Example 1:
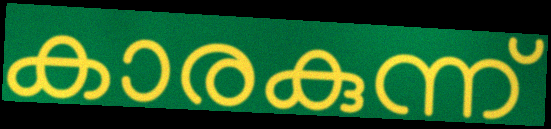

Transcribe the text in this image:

കാരകുന്ന്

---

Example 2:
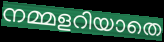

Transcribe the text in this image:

നമ്മളറിയാതെ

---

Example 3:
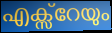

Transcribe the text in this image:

എക്സ്റേയും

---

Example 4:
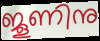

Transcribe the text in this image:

ജൂണിനു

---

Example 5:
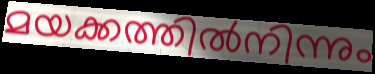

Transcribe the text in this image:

മയക്കത്തിൽനിന്നും